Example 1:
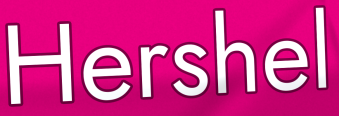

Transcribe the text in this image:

Hershel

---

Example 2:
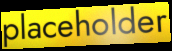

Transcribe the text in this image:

placeholder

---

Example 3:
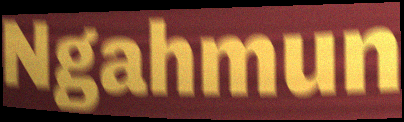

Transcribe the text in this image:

Ngahmun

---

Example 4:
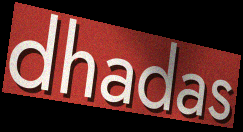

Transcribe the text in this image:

dhadas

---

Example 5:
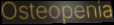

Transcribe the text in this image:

Osteopenia